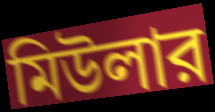
মিউলার